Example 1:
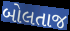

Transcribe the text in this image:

બોલતાજ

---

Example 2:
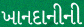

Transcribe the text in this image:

ખાનદાનીની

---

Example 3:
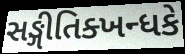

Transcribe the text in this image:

સઙ્ગીતિક્ખન્ધકે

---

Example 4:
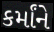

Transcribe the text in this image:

કર્માંને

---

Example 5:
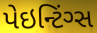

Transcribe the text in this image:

પેઇન્ટિંગ્સ